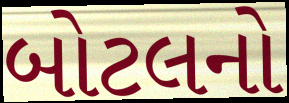
બોટલનો